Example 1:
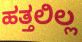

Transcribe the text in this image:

ಹತ್ತಲಿಲ್ಲ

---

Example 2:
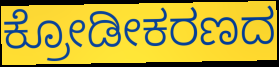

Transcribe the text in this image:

ಕ್ರೋಡೀಕರಣದ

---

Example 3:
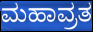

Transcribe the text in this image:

ಮಹಾವ್ರತ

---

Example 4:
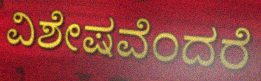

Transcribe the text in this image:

ವಿಶೇಷವೆಂದರೆ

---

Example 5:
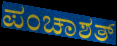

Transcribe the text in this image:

ಪಂಚಾಶತ್